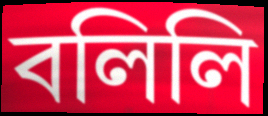
বলিলি